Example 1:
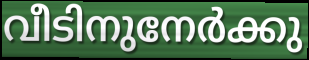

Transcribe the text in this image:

വീടിനുനേർക്കു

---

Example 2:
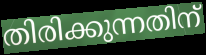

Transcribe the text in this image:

തിരിക്കുന്നതിന്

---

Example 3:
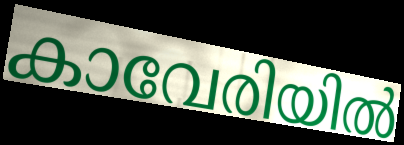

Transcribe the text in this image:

കാവേരിയിൽ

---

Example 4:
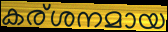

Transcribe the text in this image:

കര്ശനമായ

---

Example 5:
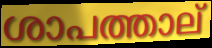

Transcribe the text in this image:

ശാപത്താല്